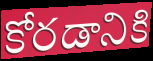
కోరడానికి